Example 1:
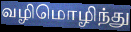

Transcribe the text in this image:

வழிமொழிந்து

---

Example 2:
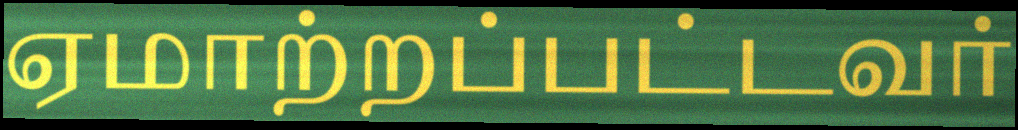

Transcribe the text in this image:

ஏமாற்றப்பட்டவர்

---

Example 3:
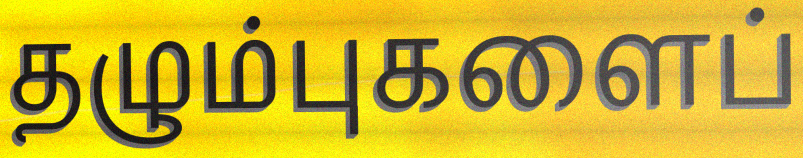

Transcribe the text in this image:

தழும்புகளைப்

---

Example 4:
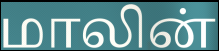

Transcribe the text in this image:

மாலின்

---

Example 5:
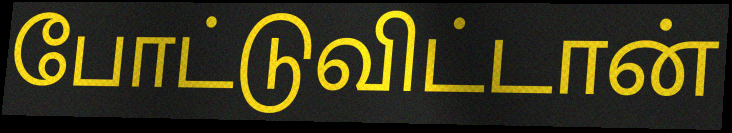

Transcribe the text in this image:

போட்டுவிட்டான்